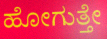
ಹೋಗುತ್ತೇ